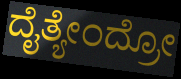
ದೈತ್ಯೇಂದ್ರೋ